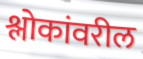
श्लोकांवरील